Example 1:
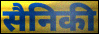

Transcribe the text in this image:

सैनिकी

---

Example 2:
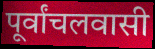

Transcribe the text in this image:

पूर्वांचलवासी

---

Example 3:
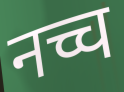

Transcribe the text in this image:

नच्च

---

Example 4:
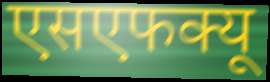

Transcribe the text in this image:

एसएफक्यू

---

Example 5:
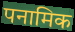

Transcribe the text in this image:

पनामिक